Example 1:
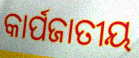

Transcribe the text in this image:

କାର୍ପଜାତୀୟ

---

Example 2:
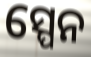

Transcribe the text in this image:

ସ୍ପେନ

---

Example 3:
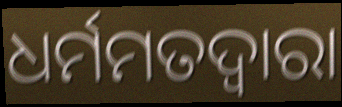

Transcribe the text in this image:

ଧର୍ମମତଦ୍ୱାରା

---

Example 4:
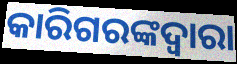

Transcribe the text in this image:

କାରିଗରଙ୍କଦ୍ୱାରା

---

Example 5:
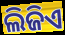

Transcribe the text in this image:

ଲିଜିଏ